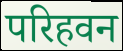
परिहवन